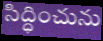
సిద్ధించును